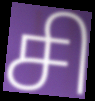
சி